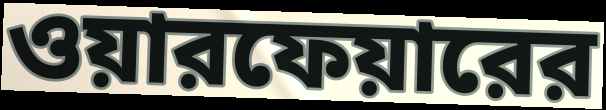
ওয়ারফেয়ারের